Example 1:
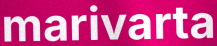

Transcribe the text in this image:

marivarta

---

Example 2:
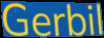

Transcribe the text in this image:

Gerbil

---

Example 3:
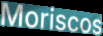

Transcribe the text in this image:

Moriscos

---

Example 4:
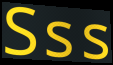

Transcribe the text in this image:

Sss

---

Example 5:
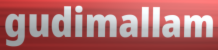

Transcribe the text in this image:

gudimallam